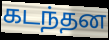
கடந்தன